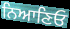
ਨਿਆਣਿਓ